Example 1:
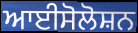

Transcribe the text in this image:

ਆਈਸੋਲੋਸ਼ਨ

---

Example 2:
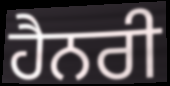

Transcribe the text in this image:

ਹੈਨਰੀ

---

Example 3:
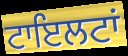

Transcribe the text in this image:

ਟਾਇਲਟਾਂ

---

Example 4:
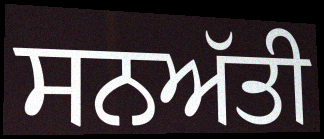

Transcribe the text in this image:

ਸਨਅੱਤੀ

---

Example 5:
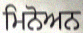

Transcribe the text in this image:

ਮਿਨੋਅਨ